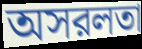
অসরলতা